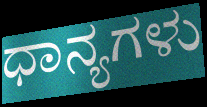
ಧಾನ್ಯಗಳು